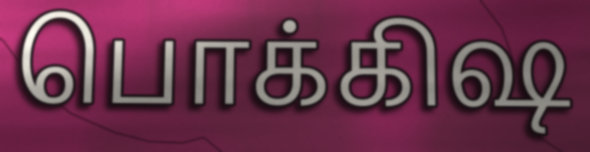
பொக்கிஷ